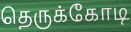
தெருக்கோடி